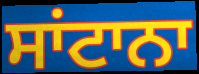
ਸਾਂਟਾਨਾ